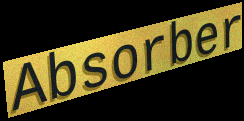
Absorber